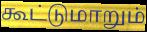
கூட்டுமாறும்